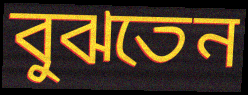
বুঝতেন